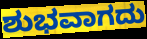
ಶುಭವಾಗದು